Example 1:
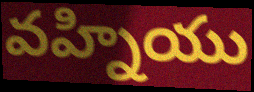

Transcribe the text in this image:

వహ్నియు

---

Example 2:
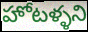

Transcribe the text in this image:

హోటళ్ళని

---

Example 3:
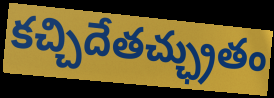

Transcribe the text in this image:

కచ్చిదేతచ్ఛ్రుతం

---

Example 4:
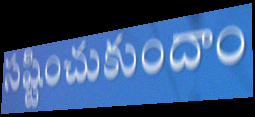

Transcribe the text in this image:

సష్టించుకుందాం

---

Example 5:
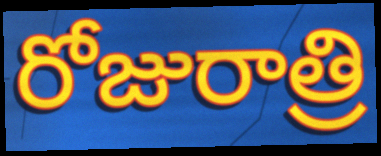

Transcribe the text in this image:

రోజురాత్రి